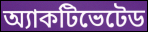
অ্যাকটিভেটেড